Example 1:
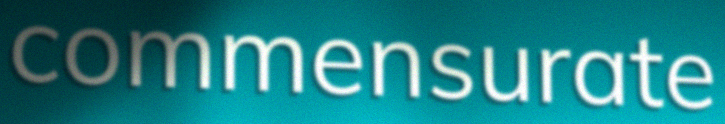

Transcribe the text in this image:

commensurate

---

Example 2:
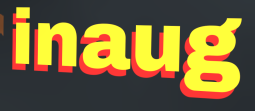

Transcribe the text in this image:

inaug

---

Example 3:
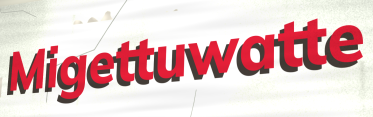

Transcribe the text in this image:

Migettuwatte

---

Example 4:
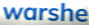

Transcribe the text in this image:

warshe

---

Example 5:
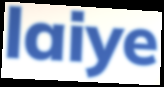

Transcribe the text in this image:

laiye